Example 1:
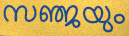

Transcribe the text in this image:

സഞ്ജയും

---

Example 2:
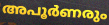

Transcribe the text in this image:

അപൂർണരും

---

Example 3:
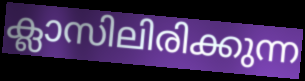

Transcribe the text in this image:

ക്ലാസിലിരിക്കുന്ന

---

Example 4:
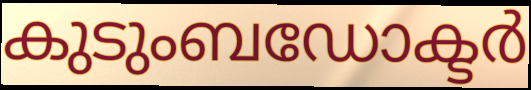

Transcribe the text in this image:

കുടുംബഡോക്ടർ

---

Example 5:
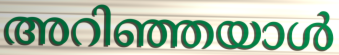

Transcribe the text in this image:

അറിഞ്ഞയാൾ